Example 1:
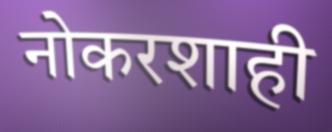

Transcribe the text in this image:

नोकरशाही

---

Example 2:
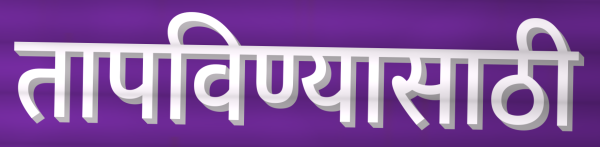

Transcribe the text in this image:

तापविण्यासाठी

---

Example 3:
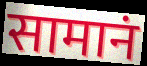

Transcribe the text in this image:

सामानं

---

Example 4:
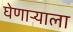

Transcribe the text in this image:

घेणार्‍याला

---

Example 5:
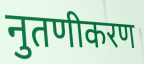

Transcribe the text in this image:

नुतणीकरण